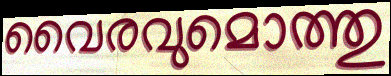
വൈരവുമൊത്തു